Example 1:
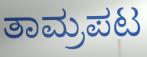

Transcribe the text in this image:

ತಾಮ್ರಪಟ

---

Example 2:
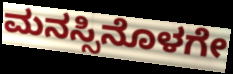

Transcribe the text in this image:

ಮನಸ್ಸಿನೊಳಗೇ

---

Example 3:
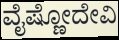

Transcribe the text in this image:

ವೈಷ್ಣೋದೇವಿ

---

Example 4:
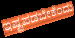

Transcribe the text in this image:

ಇಷ್ಟಪಡಬೇಕೆಂದು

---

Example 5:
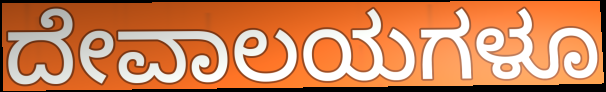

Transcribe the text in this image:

ದೇವಾಲಯಗಳೂ